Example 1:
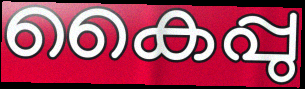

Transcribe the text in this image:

കൈപ്പു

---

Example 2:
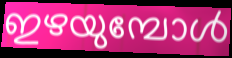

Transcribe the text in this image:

ഇഴയുമ്പോൾ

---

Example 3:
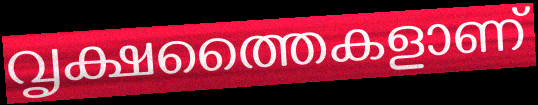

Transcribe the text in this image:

വൃക്ഷത്തൈകളാണ്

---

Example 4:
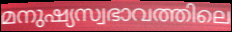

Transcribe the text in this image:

മനുഷ്യസ്വഭാവത്തിലെ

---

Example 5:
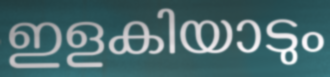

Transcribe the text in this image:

ഇളകിയാടും